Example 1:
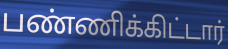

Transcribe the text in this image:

பண்ணிக்கிட்டார்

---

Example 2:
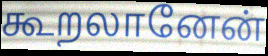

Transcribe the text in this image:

கூறலானேன்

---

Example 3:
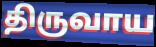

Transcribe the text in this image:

திருவாய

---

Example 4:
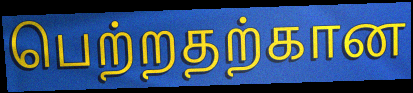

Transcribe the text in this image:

பெற்றதற்கான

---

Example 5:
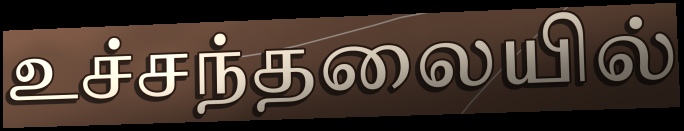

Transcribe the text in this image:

உச்சந்தலையில்